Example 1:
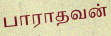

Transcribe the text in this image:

பாராதவன்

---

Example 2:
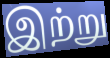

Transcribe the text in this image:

இற்று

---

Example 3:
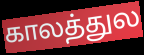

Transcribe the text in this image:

காலத்துல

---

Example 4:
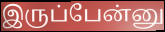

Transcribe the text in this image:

இருப்பேன்னு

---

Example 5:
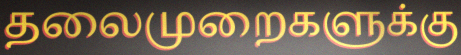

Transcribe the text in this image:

தலைமுறைகளுக்கு